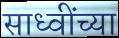
साध्वींच्या